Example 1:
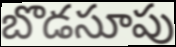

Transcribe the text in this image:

బొడసూపు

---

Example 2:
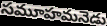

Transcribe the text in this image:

సమూహమనెడు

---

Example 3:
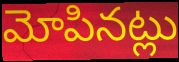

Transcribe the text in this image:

మోపినట్లు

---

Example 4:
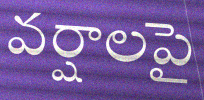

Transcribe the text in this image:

వర్షాలపై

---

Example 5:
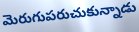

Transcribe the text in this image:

మెరుగుపరుచుకున్నాడు